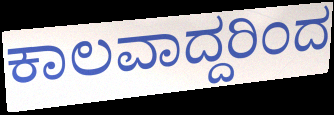
ಕಾಲವಾದ್ದರಿಂದ